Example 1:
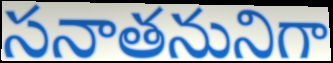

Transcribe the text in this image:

సనాతనునిగా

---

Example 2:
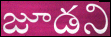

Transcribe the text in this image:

జూడని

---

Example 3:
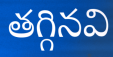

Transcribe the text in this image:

తగ్గినవి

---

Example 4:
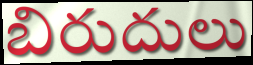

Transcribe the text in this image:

బిరుదులు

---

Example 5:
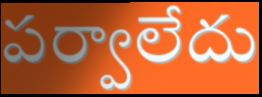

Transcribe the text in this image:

పర్వాలేదు